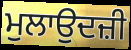
ਮੁਲਾਉਦਜ਼ੀ